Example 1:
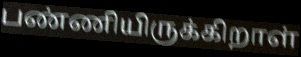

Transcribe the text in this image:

பண்ணியிருக்கிறாள்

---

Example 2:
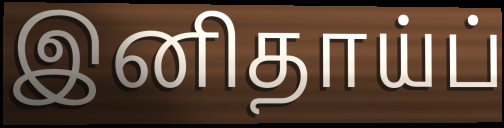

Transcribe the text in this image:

இனிதாய்ப்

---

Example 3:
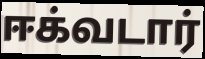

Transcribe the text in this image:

ஈக்வடார்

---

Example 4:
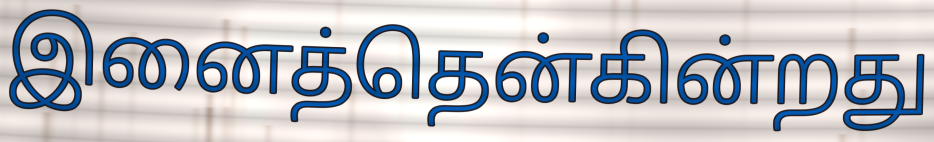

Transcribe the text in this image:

இனைத்தென்கின்றது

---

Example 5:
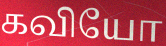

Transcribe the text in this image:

கவியோ